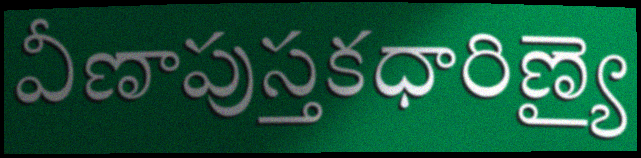
వీణాపుస్తకధారిణ్యై